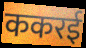
ककरई